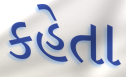
કહેતા